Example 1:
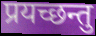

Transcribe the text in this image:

प्रयच्छन्तु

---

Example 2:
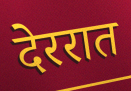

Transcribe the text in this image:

देररात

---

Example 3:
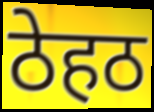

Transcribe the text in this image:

ठेहठ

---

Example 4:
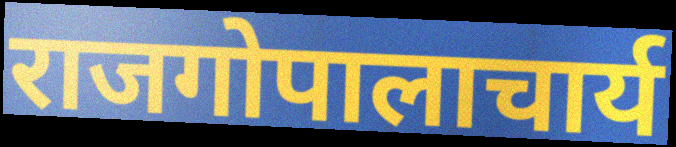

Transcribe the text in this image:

राजगोपालाचार्य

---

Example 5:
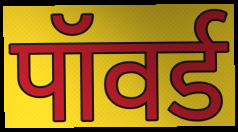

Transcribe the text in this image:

पॉवर्ड